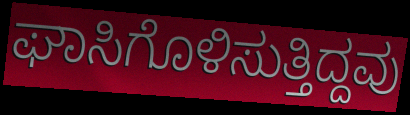
ಘಾಸಿಗೊಳಿಸುತ್ತಿದ್ದವು